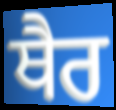
ਥੈਰ